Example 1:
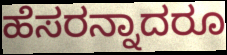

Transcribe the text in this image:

ಹೆಸರನ್ನಾದರೂ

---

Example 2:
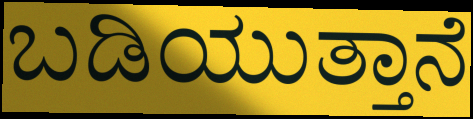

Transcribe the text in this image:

ಬಡಿಯುತ್ತಾನೆ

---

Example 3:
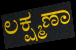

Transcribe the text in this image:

ಲಕ್ಷ್ಮಣಾ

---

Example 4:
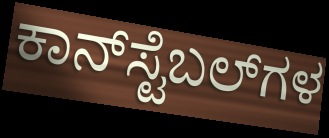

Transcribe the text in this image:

ಕಾನ್‌ಸ್ಟೆಬಲ್‌ಗಳ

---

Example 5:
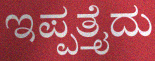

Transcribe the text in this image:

ಇಪ್ಪತ್ತೈದು